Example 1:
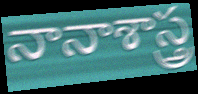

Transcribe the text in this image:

నానాశాస్త్ర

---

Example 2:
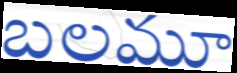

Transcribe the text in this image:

బలమూ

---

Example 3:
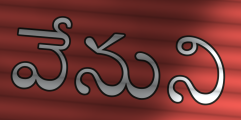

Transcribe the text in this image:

వేనుని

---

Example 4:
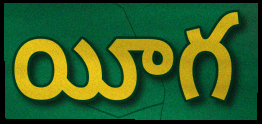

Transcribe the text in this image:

యీగ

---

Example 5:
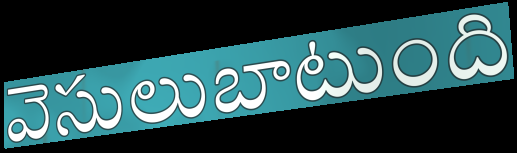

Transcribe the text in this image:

వెసులుబాటుంది